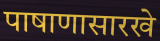
पाषाणासारखे